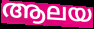
ആലയ